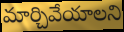
మార్చివేయాలని